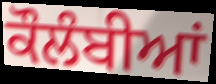
ਕੌਲੰਬੀਆਂ